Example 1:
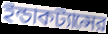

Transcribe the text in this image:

ইন্ডাকট্যান্সের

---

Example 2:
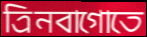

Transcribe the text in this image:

ত্রিনবাগোতে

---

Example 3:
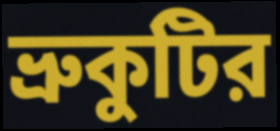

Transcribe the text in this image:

ভ্রুকুটির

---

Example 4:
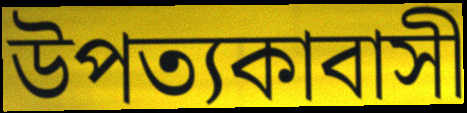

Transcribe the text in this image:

উপত্যকাবাসী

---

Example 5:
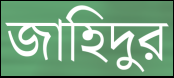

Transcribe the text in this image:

জাহিদুর